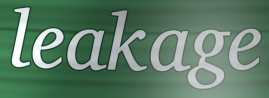
leakage